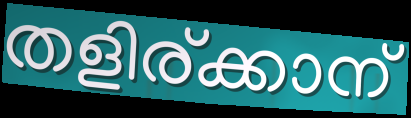
തളിര്ക്കാന്